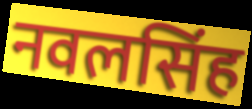
नवलसिंह